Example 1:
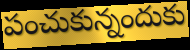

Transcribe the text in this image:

పంచుకున్నందుకు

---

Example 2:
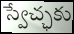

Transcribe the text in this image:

స్వేచ్ఛకు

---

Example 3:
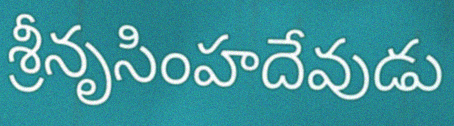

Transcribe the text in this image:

శ్రీనృసింహదేవుడు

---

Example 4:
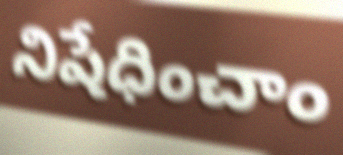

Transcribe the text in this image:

నిషేధించాం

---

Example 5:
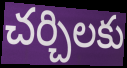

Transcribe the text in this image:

చర్చిలకు